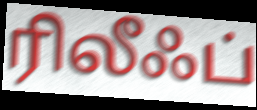
ரிலீஃப்